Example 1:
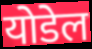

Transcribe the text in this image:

योडेल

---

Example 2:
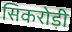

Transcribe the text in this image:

सिकरोड़ी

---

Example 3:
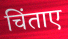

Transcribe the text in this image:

चिंताए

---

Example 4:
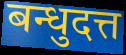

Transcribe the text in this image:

बन्धुदत्त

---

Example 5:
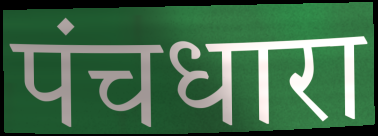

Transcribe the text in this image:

पंचधारा